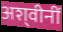
अश्वीनीं